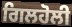
ਗਿਲਹੋਲੀ